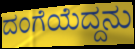
ದಂಗೆಯೆದ್ದನು